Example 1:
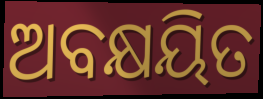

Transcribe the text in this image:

ଅବକ୍ଷୟିତ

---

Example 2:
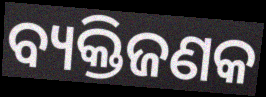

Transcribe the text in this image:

ବ୍ୟକ୍ତିଜଣକ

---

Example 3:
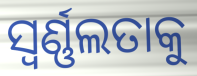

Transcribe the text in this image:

ସ୍ଵର୍ଣ୍ଣଲତାକୁ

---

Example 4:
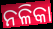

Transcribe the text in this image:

ନଳିକା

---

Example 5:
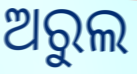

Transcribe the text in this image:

ଅରୁଲ